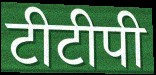
टीटीपी